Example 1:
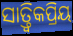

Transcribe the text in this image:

ସାତ୍ତ୍ଵିକପ୍ରିୟ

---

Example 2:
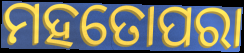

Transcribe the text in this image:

ମହତୋପରା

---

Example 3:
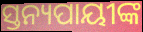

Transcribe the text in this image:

ସ୍ତନ୍ୟପାୟୀଙ୍କ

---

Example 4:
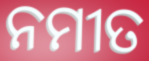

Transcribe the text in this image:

ନମୀତ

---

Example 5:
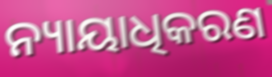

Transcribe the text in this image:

ନ୍ୟାୟାଧିକରଣ